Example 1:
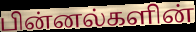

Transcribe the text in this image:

பின்னல்களின்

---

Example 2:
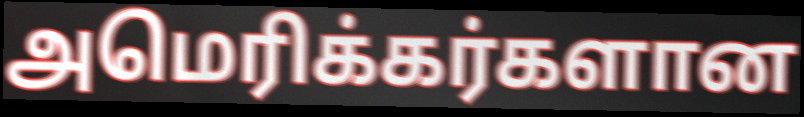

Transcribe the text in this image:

அமெரிக்கர்களான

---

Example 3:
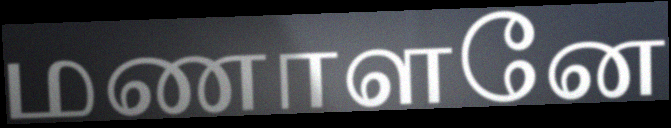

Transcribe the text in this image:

மணாளனே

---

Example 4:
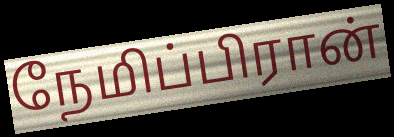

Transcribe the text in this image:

நேமிப்பிரான்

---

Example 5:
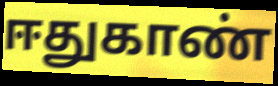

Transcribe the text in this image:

ஈதுகாண்